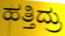
ಹತ್ತಿದ್ರು